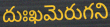
దుఃఖమెరుగని